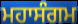
ਮਹਾਸੰਗਮ